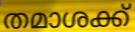
തമാശക്ക്